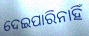
ଦେଇପାରିନାହିଁ